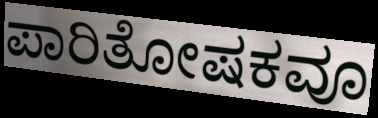
ಪಾರಿತೋಷಕವೂ